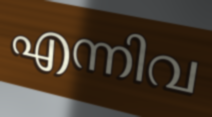
എന്നിവ